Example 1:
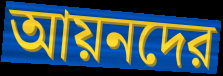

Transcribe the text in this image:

আয়নদের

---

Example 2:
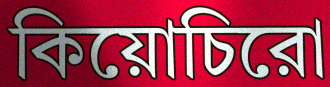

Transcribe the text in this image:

কিয়োচিরো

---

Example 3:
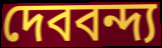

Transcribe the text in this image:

দেববন্দ্য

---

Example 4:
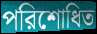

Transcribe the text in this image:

পরিশোধিত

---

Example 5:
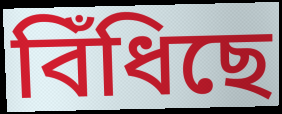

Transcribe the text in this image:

বিঁধিছে